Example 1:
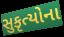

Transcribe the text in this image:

સુકૃત્યોના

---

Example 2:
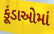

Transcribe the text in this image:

કૂંડાઓમાં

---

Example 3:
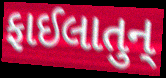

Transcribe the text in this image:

ફાઈલાતુન્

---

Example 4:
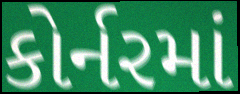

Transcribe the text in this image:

કોર્નરમાં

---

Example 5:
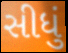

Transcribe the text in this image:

સીધું